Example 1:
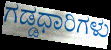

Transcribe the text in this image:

ಗಡ್ಡಧಾರಿಗಳು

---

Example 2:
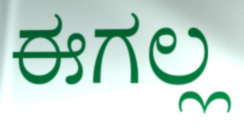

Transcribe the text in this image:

ಈಗಲ್ಲ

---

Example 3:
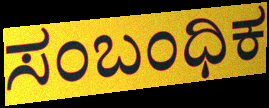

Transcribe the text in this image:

ಸಂಬಂಧಿಕ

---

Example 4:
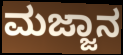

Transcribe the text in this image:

ಮಜ್ಜಾನ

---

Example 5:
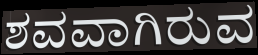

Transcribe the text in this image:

ಶವವಾಗಿರುವ